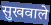
सुखवाले